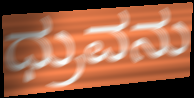
ಧ್ರುವನು